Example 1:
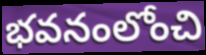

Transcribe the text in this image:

భవనంలోంచి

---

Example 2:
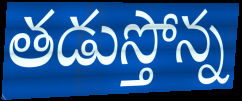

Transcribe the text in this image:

తడుస్తోన్న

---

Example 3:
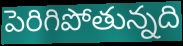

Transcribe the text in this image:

పెరిగిపోతున్నది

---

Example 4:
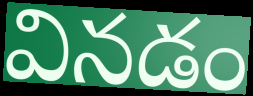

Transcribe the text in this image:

వినడం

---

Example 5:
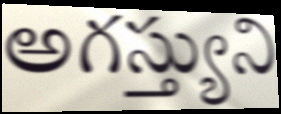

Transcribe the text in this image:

అగస్త్యుని